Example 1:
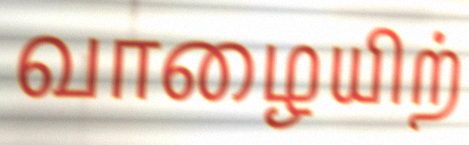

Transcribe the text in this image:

வாழையிற்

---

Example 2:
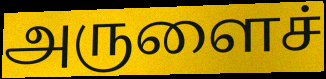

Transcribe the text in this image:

அருளைச்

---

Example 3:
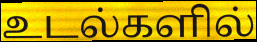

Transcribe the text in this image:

உடல்களில்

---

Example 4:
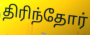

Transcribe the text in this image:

திரிந்தோர்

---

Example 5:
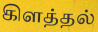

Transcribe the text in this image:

கிளத்தல்